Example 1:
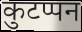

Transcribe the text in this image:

कुटप्पन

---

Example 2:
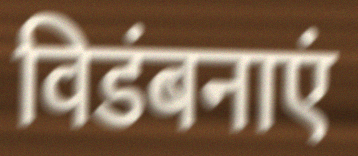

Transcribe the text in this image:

विडंबनाएं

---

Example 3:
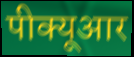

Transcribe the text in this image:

पीक्यूआर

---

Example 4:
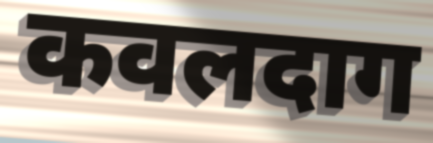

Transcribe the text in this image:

कवलदाग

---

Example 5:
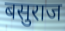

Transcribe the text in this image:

बसुराज